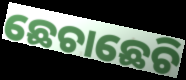
ଛେଚାଛେଚି